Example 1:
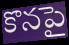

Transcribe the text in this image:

కొనపై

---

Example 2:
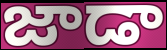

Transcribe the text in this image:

జాడా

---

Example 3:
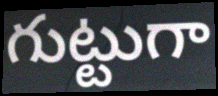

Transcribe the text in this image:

గుట్టుగా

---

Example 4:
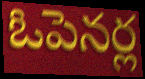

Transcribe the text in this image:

ఓపెనర్ల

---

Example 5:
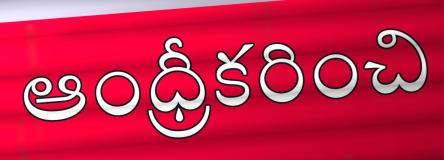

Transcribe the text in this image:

ఆంధ్రీకరించి